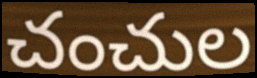
చంచుల